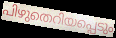
പിഴുതെറിയപ്പെടും